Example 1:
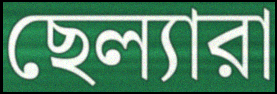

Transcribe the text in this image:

ছেল্যারা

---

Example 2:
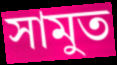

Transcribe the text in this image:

সামুত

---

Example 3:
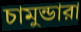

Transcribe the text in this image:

চামুন্ডারা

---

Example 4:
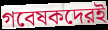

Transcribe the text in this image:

গবেষকদেরই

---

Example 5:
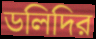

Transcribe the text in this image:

ডলিদির